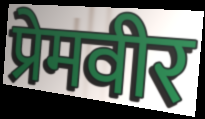
प्रेमवीर